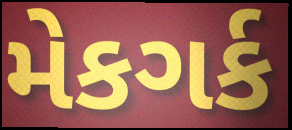
મેકગર્ક